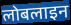
लोबलाइन